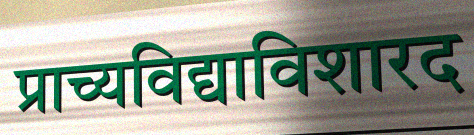
प्राच्यविद्याविशारद